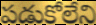
పడుకోలేని